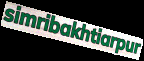
simribakhtiarpur